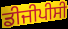
ਡੀਜੀਪੀਸੀ